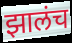
झालंच